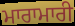
ਮਾਰਾਮਾਰੀ